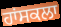
ਹਾਂਸਕਲਾ